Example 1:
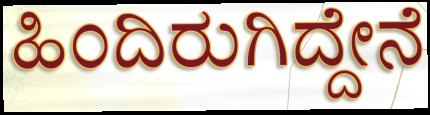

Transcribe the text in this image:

ಹಿಂದಿರುಗಿದ್ದೇನೆ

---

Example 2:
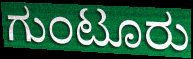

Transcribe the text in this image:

ಗುಂಟೂರು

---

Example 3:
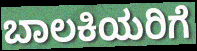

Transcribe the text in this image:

ಬಾಲಕಿಯರಿಗೆ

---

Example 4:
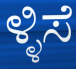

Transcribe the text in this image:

ಳ್ಳಿಸೆ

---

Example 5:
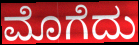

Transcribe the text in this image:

ಮೊಗೆದು